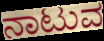
ನಾಟುವ